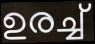
ഉരച്ച്